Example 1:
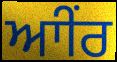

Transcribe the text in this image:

ਆੀਂਰ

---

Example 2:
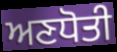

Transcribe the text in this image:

ਅਣਧੋਤੀ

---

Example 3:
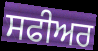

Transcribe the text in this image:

ਸਫੀਅਰ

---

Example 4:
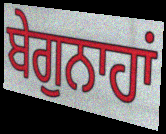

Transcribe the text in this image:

ਬੇਗੁਨਾਹਾਂ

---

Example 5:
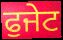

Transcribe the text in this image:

ਫੁਜੇਟ